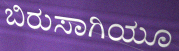
ಬಿರುಸಾಗಿಯೂ